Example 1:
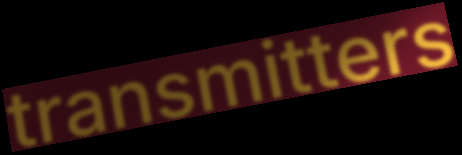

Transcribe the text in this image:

transmitters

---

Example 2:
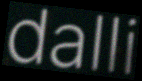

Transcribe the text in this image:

dalli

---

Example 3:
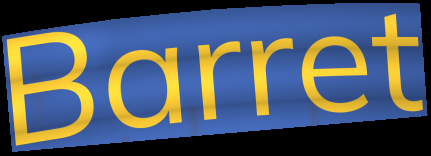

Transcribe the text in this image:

Barret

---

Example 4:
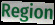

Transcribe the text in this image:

Region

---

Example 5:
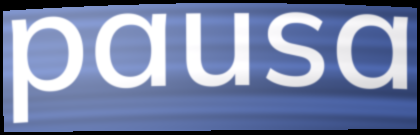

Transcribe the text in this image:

pausa